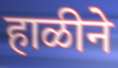
हाळीने